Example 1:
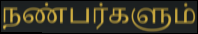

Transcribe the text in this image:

நண்பர்களும்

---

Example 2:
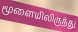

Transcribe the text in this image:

மூளையிலிருந்து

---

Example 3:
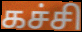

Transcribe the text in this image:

கச்சி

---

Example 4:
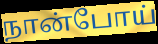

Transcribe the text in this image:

நான்போய்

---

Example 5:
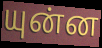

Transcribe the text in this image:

யுன்ன